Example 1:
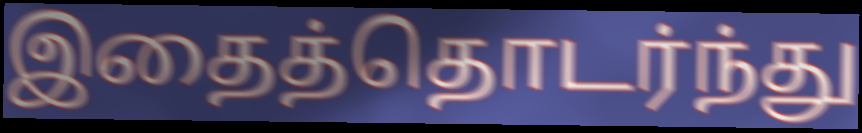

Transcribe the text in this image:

இதைத்தொடர்ந்து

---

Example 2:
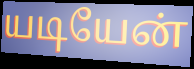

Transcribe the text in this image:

யடியேன்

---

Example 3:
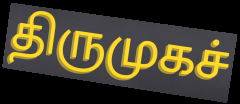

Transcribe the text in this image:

திருமுகச்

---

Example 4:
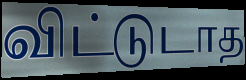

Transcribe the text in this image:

விட்டுடாத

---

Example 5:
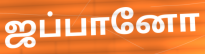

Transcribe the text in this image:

ஜப்பானோ